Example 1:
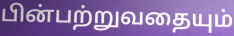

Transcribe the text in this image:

பின்பற்றுவதையும்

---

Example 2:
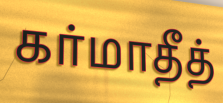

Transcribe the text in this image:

கர்மாதீத்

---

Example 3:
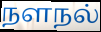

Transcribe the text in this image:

நளநல்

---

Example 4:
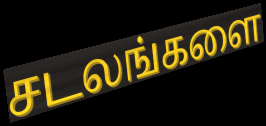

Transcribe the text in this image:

சடலங்களை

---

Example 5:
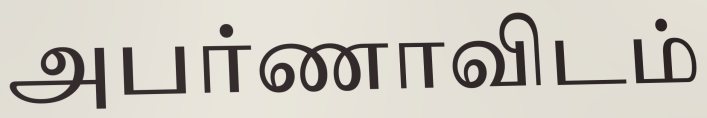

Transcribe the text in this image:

அபர்ணாவிடம்